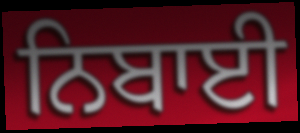
ਨਿਬਾਈ